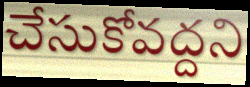
చేసుకోవద్దని